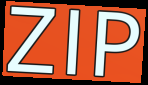
ZIP